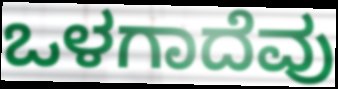
ಒಳಗಾದೆವು